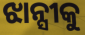
ଝାନ୍ସୀକୁ